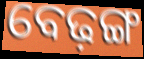
ବେଢ଼ଙ୍ଗ